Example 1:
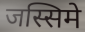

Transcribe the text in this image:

जस्सिमे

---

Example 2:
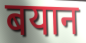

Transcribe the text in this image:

बयान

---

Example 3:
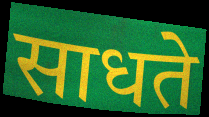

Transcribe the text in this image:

साधते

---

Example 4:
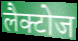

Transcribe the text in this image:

लैक्टोज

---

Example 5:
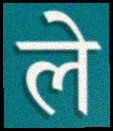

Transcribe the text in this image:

ले